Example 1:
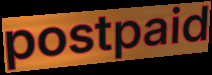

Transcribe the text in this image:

postpaid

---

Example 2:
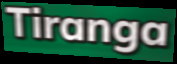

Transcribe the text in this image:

Tiranga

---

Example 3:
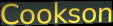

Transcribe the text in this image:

Cookson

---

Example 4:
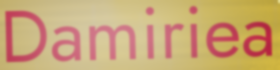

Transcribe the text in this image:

Damiriea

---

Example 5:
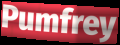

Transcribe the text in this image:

Pumfrey